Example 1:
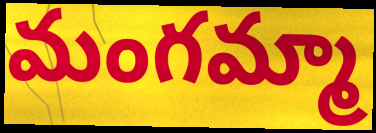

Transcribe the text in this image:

మంగమ్మా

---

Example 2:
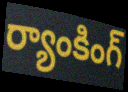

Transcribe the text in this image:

ర్యాంకింగ్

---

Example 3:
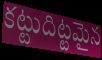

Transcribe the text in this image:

కట్టుదిట్టమైన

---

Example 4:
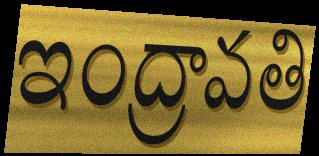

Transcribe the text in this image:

ఇంద్రావతి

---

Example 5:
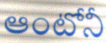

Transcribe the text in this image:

ఆంటోనీ